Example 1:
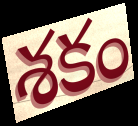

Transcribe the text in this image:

శకం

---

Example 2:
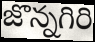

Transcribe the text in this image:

జొన్నగిరి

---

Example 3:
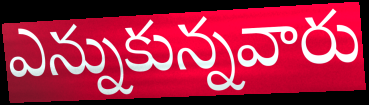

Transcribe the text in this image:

ఎన్నుకున్నవారు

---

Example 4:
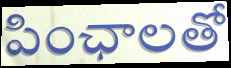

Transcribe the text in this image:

పింఛాలతో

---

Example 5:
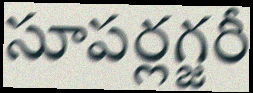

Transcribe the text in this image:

సూపర్లగ్జరీ